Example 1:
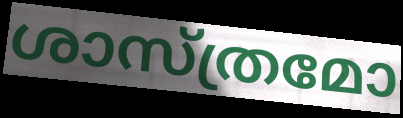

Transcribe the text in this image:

ശാസ്ത്രമോ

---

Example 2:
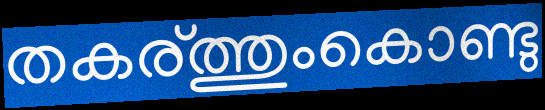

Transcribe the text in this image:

തകര്ത്തുംകൊണ്ടു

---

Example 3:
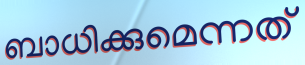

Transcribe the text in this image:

ബാധിക്കുമെന്നത്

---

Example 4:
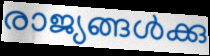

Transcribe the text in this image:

രാജ്യങ്ങൾക്കു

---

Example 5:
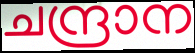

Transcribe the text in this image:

ചന്ദ്രാന